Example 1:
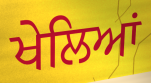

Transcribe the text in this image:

ਖੇਲਿਆਂ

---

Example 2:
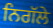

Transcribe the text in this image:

ਨਿਗੱਲੇ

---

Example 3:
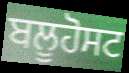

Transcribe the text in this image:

ਬਲੂਹੋਸਟ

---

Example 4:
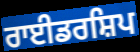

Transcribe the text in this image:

ਰਾਈਡਰਸ਼ਿਪ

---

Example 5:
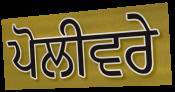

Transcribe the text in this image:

ਪੋਲੀਵਰੇ